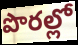
పొరల్లో